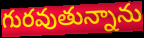
గురవుతున్నాను